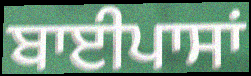
ਬਾਈਪਾਸਾਂ